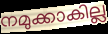
നമുക്കാകില്ല